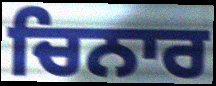
ਚਿਨਾਰ